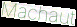
Machaut